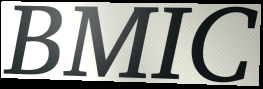
BMIC